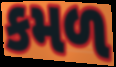
કમળ